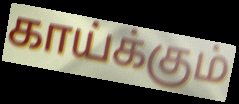
காய்க்கும்